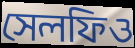
সেলফিও